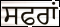
ਸਫਰਾਂ